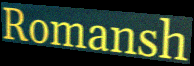
Romansh